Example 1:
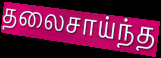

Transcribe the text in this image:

தலைசாய்ந்த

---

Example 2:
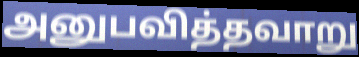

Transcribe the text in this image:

அனுபவித்தவாறு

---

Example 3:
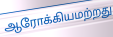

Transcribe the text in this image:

ஆரோக்கியமற்றது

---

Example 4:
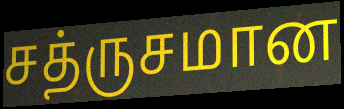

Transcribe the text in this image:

சத்ருசமான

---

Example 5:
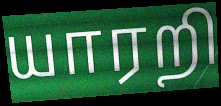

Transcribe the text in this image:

யாரறி